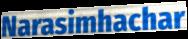
Narasimhachar